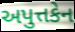
અપુત્તકેન